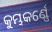
କୁମ୍ଭକର୍ଣ୍ଣେ